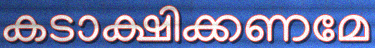
കടാക്ഷിക്കണമേ